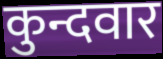
कुन्दवार